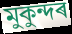
মুকুন্দৰ